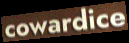
cowardice